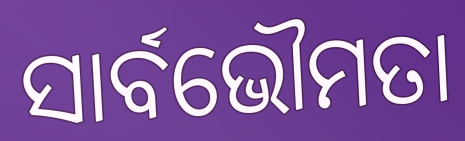
ସାର୍ବଭୌମତା